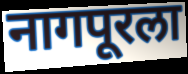
नागपूरला